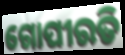
ଗୋପୀରତି